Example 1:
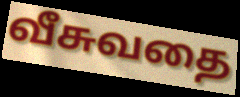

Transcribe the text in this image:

வீசுவதை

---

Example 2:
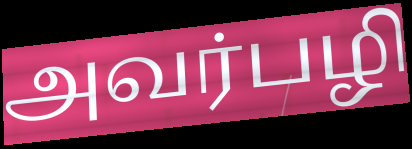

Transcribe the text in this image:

அவர்பழி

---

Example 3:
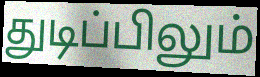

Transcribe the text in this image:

துடிப்பிலும்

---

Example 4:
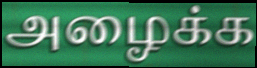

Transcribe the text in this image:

அழைக்க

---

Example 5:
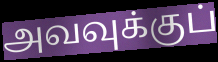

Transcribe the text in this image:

அவவுக்குப்